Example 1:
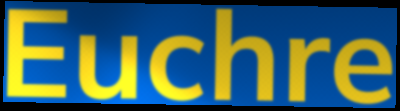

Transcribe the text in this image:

Euchre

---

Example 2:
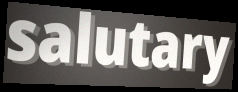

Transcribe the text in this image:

salutary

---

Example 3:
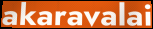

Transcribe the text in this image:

akaravalai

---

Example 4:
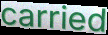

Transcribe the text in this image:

carried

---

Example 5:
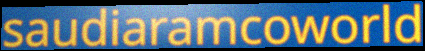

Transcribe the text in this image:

saudiaramcoworld